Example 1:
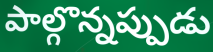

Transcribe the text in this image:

పాల్గొన్నప్పుడు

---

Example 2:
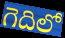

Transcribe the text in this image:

గెదిలో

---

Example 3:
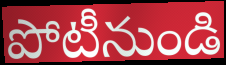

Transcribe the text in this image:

పోటీనుండి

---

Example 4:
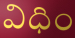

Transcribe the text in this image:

విధిం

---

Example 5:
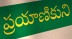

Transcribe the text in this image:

ప్రయాణికుని